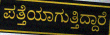
ಪತ್ತೆಯಾಗುತ್ತಿದ್ದಾರೆ